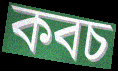
কবচ